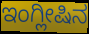
ಇಂಗ್ಲೀಷಿನ